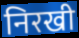
निरखी